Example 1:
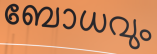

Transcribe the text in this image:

ബോധവും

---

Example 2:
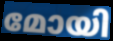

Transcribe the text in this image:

മോയി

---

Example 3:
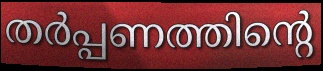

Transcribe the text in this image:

തർപ്പണത്തിന്റെ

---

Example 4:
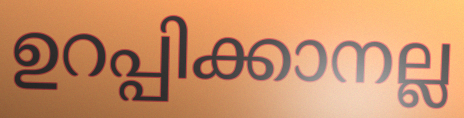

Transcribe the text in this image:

ഉറപ്പിക്കാനല്ല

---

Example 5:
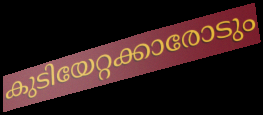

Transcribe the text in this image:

കുടിയേറ്റക്കാരോടും